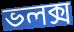
ভলক্স